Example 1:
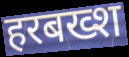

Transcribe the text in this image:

हरबख्श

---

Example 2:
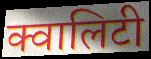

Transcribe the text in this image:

क्‍वालिटी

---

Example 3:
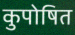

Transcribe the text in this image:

कुपोषित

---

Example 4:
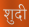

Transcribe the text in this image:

शुदी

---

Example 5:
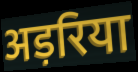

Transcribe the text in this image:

अड़रिया